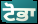
ਟੋਭਾ